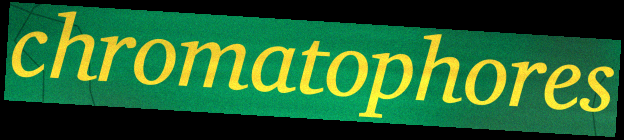
chromatophores